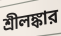
শ্রীলঙ্কার